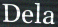
Dela